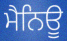
ਮੈਨਿਊ